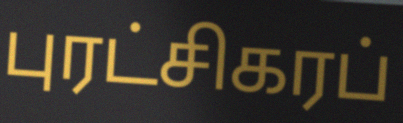
புரட்சிகரப்